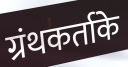
ग्रंथकर्ताके